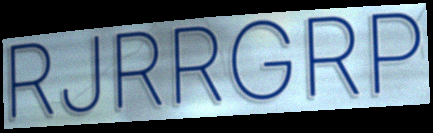
RJRRGRP